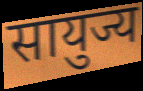
सायुज्य